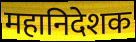
महानिदेशक